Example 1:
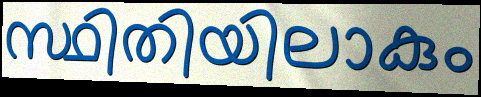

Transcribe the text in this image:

സ്ഥിതിയിലാകും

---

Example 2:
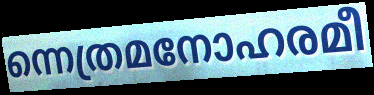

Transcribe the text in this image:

ന്നെത്രമനോഹരമീ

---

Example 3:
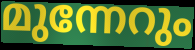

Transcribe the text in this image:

മുന്നേറും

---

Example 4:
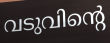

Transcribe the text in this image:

വടുവിന്റെ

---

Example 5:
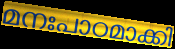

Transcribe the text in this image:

മനഃപാഠമാക്കി